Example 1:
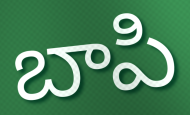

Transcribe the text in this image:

బాపి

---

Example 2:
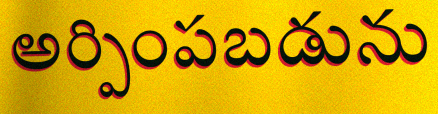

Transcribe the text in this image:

అర్పింపబడును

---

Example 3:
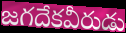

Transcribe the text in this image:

జగదేకవీరుడు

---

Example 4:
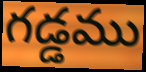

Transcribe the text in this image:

గడ్డము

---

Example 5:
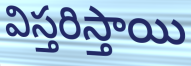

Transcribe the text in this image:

విస్తరిస్తాయి